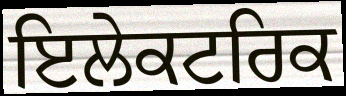
ਇਲੇਕਟਰਿਕ